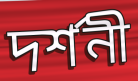
দৰ্শনী